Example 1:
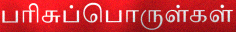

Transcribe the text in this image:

பரிசுப்பொருள்கள்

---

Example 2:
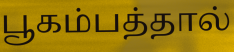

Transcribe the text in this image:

பூகம்பத்தால்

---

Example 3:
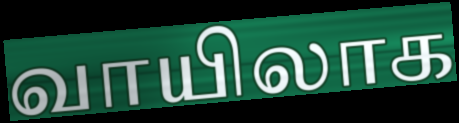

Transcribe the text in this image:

வாயிலாக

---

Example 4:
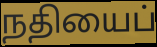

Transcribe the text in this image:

நதியைப்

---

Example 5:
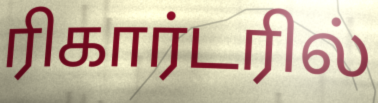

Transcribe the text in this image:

ரிகார்டரில்